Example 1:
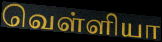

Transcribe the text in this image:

வெள்ளியா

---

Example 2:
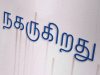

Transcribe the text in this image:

நகருகிறது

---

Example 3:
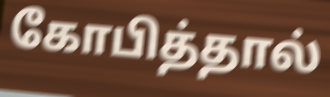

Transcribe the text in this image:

கோபித்தால்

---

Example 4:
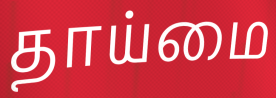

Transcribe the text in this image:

தாய்மை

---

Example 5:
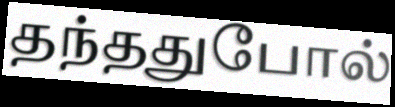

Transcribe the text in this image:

தந்ததுபோல்